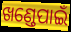
ଖଣ୍ଡେପାଇଁ